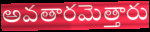
అవతారమెత్తారు